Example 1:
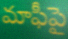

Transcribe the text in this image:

మాఫీపై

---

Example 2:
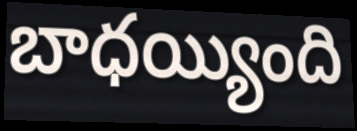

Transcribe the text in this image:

బాధయ్యింది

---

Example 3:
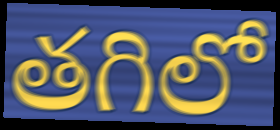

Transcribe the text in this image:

తగిలో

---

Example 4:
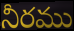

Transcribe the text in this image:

నీరము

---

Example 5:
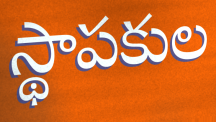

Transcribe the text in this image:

స్థాపకుల